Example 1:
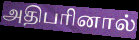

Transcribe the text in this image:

அதிபரினால்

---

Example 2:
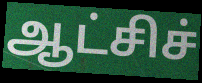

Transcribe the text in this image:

ஆட்சிச்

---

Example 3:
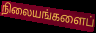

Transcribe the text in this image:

நிலையங்களைப்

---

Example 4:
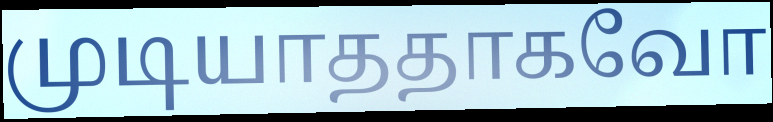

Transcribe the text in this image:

முடியாததாகவோ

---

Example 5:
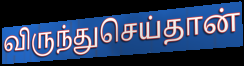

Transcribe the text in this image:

விருந்துசெய்தான்